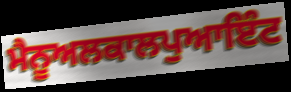
ਮੈਨੂਅਲਕਾਲਪੁਆਇੰਟ